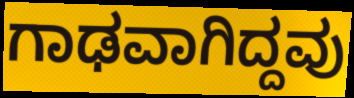
ಗಾಢವಾಗಿದ್ದವು